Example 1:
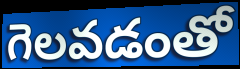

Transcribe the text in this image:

గెలవడంతో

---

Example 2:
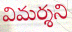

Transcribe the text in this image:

విమర్శని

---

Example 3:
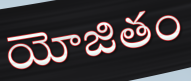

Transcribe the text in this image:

యోజితం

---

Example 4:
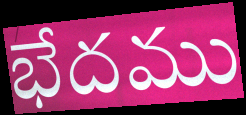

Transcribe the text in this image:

భేదము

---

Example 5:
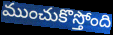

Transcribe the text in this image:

ముంచుకొస్తోంది